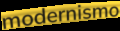
modernismo